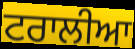
ਟਰਾਲੀਆ